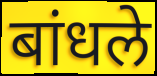
बांधले